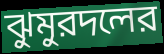
ঝুমুরদলের